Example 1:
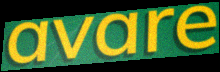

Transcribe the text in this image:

avare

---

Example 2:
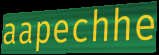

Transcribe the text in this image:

aapechhe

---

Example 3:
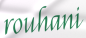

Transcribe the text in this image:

rouhani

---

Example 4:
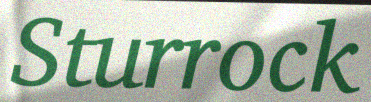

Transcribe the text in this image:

Sturrock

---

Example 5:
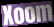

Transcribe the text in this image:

Xoom